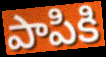
పాపికి